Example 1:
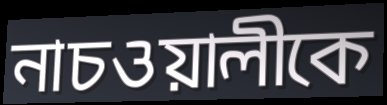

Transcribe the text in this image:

নাচওয়ালীকে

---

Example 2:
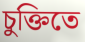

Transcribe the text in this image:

চুক্তিতে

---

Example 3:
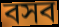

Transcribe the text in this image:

বসব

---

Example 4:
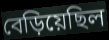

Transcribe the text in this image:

বেড়িয়েছিল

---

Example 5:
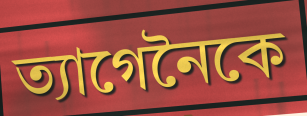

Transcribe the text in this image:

ত্যাগেনৈকে